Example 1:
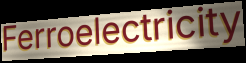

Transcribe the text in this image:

Ferroelectricity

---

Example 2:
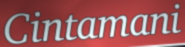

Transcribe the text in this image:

Cintamani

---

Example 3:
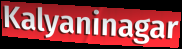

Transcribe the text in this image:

Kalyaninagar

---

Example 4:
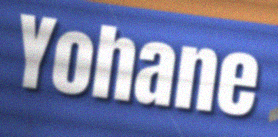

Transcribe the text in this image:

Yohane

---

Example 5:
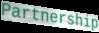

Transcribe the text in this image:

Partnership